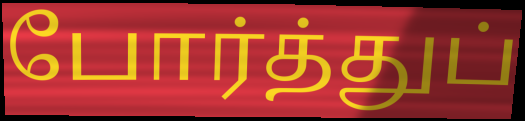
போர்த்துப்